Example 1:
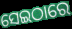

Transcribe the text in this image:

ସେଇଠାରେ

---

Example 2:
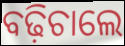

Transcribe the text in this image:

ବଢ଼ିଚାଲେ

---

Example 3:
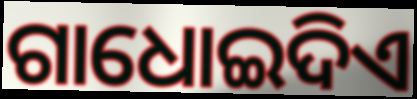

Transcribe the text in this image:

ଗାଧୋଇଦିଏ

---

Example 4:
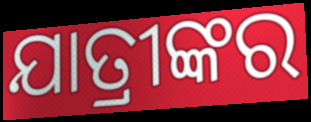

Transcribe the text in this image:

ଯାତ୍ରୀଙ୍କର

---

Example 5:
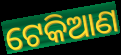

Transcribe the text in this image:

ଟେକିଆଣ